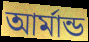
আর্মান্ড